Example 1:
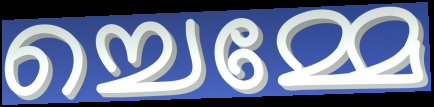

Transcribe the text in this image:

ച്ചെമ്മേ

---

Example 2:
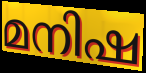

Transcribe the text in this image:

മനിഷ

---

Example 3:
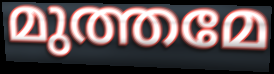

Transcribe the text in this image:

മുത്തമേ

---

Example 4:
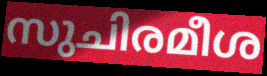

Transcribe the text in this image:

സുചിരമീശ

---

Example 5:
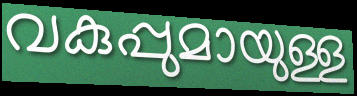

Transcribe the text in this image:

വകുപ്പുമായുള്ള